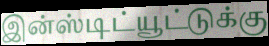
இன்ஸ்டிட்யூட்டுக்கு